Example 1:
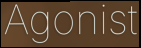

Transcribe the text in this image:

Agonist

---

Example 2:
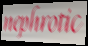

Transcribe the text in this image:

nephrotic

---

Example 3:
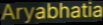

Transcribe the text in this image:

Aryabhatia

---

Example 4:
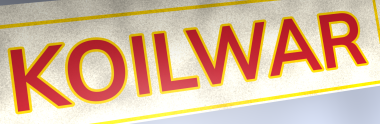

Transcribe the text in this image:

KOILWAR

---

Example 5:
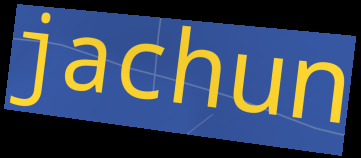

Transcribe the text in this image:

jachun